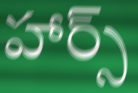
హార్స్